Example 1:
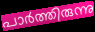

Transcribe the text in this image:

പാർത്തിരുന്നു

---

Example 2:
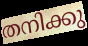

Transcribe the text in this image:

തനിക്കു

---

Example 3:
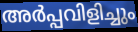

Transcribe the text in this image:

അർപ്പവിളിച്ചും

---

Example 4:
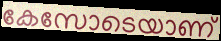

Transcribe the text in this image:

കേസോടെയാണ്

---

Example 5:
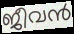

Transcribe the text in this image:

ജീവൻ